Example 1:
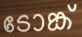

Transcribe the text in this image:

ടോങ്ക്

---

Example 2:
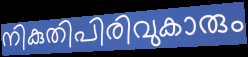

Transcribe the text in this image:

നികുതിപിരിവുകാരും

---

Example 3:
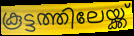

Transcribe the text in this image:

കൂട്ടത്തിലേയ്ക്ക്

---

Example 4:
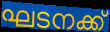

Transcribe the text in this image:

ഘടനക്ക്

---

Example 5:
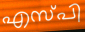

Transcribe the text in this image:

എസ്പി